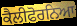
ਕੈਲੀਫੋਰਨਿਆ